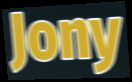
Jony